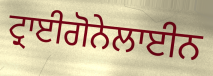
ਟ੍ਰਾਈਗੋਨੇਲਾਈਨ